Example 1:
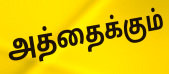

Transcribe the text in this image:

அத்தைக்கும்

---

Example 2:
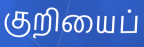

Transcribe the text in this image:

குறியைப்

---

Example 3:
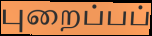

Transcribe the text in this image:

புறைப்பப்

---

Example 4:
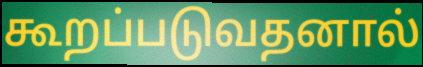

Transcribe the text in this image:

கூறப்படுவதனால்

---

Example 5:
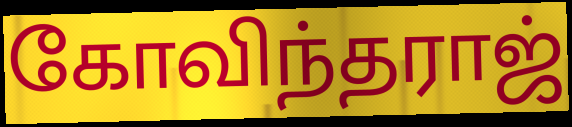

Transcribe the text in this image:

கோவிந்தராஜ்